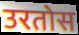
उरतोस